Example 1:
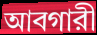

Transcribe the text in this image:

আবগারী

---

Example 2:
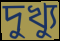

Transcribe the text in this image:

দুখ্যু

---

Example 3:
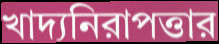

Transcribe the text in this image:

খাদ্যনিরাপত্তার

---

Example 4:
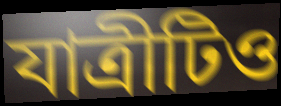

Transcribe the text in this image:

যাত্রীটিও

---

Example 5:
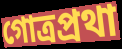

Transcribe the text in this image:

গোত্রপ্রথা